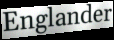
Englander